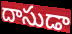
దాసుడా